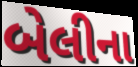
બેલીના